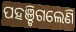
ପହଞ୍ଚିଗଲେଣି